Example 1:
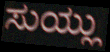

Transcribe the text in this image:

ಸುಯ್ಲು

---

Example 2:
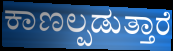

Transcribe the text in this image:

ಕಾಣಲ್ಪಡುತ್ತಾರೆ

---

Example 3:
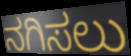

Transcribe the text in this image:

ನಗಿಸಲು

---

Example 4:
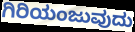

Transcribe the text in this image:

ಗಿರಿಯಂಜುವುದು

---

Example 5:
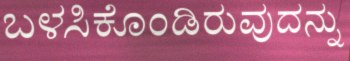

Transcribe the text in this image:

ಬಳಸಿಕೊಂಡಿರುವುದನ್ನು